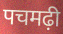
पचमढ़ी